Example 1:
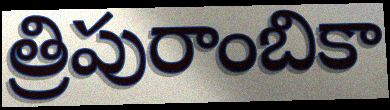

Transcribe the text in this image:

త్రిపురాంబికా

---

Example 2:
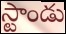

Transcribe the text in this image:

స్టాండు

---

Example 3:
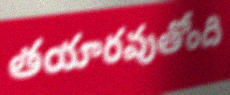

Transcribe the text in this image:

తయారవుతోంది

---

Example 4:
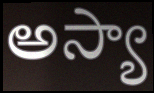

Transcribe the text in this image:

అస్యా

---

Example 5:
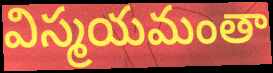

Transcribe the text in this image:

విస్మయమంతా